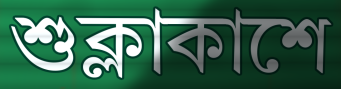
শুক্লাকাশে